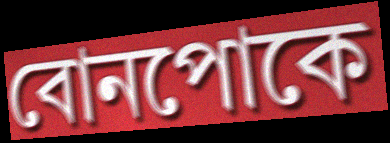
বোনপোকে